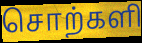
சொற்களி